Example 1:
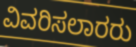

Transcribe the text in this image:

ವಿವರಿಸಲಾರರು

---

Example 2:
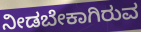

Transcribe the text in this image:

ನೀಡಬೇಕಾಗಿರುವ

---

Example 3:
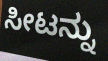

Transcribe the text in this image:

ಸೀಟನ್ನು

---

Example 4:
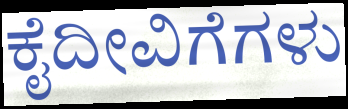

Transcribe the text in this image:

ಕೈದೀವಿಗೆಗಳು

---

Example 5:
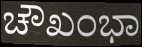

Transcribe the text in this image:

ಚೌಖಂಭಾ